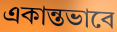
একান্তভাবে